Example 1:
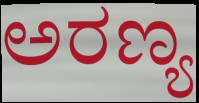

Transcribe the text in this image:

ಅರಣ್ಯ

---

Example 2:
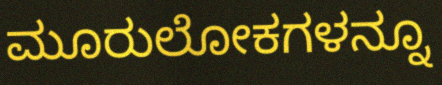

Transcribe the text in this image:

ಮೂರುಲೋಕಗಳನ್ನೂ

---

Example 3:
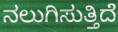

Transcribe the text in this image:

ನಲುಗಿಸುತ್ತಿದೆ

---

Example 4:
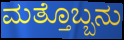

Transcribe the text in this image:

ಮತ್ತೊಬ್ಬನು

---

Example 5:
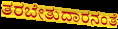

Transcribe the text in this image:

ತರಬೇತುದಾರನಂತೆ